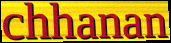
chhanan